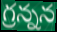
గ్రన్నన